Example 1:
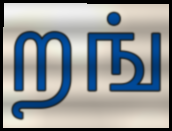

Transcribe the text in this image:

றங்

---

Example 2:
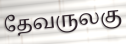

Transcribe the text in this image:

தேவருலகு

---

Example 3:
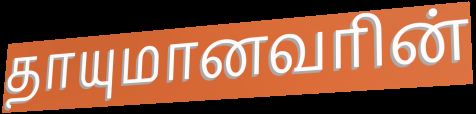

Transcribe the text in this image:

தாயுமானவரின்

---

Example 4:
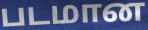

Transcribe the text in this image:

படமான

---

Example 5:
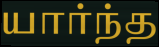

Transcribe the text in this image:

யார்ந்த